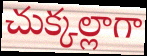
చుక్కల్లాగా